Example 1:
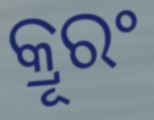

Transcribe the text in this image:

କ୍ରୂରଂ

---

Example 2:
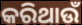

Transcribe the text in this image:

କରିଥାଉଁ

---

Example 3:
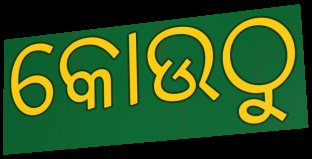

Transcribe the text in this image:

କୋଉଠୁ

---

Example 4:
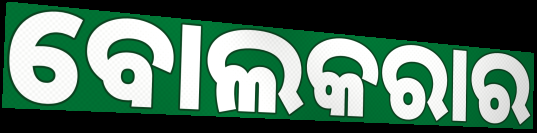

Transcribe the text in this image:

ବୋଲକରାର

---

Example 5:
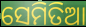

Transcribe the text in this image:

ସେମିତିଆ